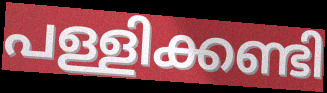
പള്ളിക്കണ്ടി